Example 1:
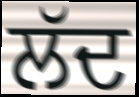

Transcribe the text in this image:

ਲੱਦ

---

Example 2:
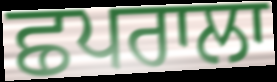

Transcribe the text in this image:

ਛਪਰਾਲਾ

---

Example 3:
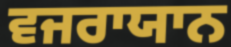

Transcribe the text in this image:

ਵਜਰਾਯਾਨ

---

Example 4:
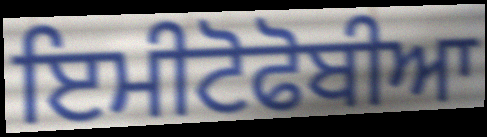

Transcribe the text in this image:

ਇਮੀਟੋਫੋਬੀਆ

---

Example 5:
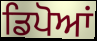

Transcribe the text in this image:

ਡਿਪੋਆਂ